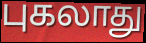
புகலாது